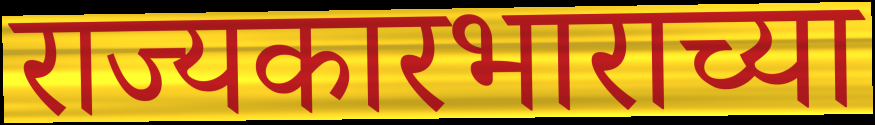
राज्यकारभाराच्या